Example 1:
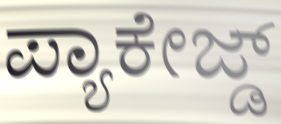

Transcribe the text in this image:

ಪ್ಯಾಕೇಜ್ಡ್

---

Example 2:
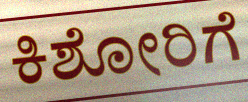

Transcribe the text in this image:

ಕಿಶೋರಿಗೆ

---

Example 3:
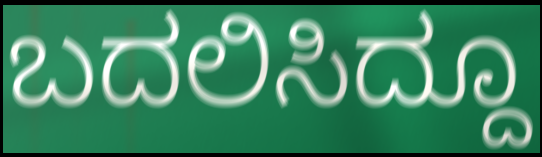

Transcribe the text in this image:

ಬದಲಿಸಿದ್ದೂ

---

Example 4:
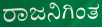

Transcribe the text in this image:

ರಾಜನಿಗಿಂತ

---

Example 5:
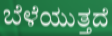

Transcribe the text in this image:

ಬೆಳೆಯುತ್ತದೆ